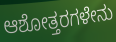
ಆಶೋತ್ತರಗಳೇನು